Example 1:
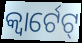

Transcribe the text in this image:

କ୍ୱାର୍ଟେଟ୍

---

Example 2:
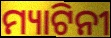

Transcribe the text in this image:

ମ୍ୟାଟିନୀ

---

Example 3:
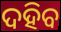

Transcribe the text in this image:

ଦହିବ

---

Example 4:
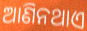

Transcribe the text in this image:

ଆଣିନଥାଏ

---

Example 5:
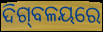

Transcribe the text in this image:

ଦିଗ୍‍ବଳୟରେ